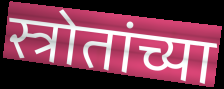
स्त्रोतांच्या